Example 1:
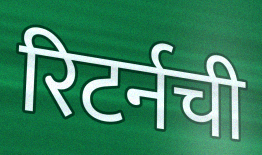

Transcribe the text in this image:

रिटर्नची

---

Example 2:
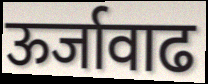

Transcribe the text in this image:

ऊर्जावाढ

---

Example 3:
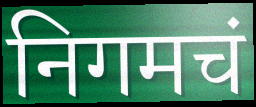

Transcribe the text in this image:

निगमचं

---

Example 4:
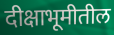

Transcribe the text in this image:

दीक्षाभूमीतील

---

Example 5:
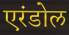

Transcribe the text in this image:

एरंडोल